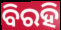
ବିରହି